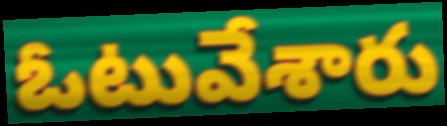
ఓటువేశారు